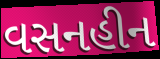
વસનહીન